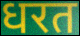
धरत